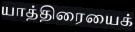
யாத்திரையைக்